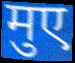
मुए